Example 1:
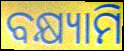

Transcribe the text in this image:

ବକ୍ଷ୍ୟାମି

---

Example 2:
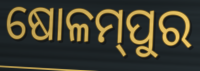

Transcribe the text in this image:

ଷୋଳମ୍‌ପୁର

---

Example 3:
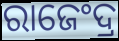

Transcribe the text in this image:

ରାଜେଂଦ୍ର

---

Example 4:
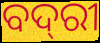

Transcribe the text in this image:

ବଦ୍‌ରୀ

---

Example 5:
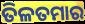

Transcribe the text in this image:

ତିଳତମାର